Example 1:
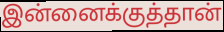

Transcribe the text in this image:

இன்னைக்குத்தான்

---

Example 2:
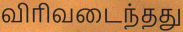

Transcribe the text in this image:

விரிவடைந்தது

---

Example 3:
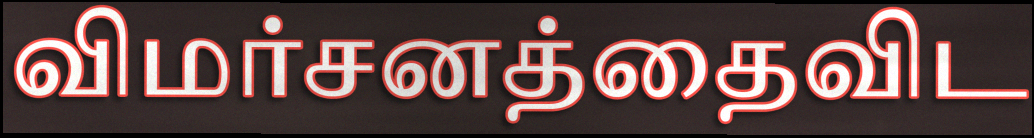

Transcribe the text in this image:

விமர்சனத்தைவிட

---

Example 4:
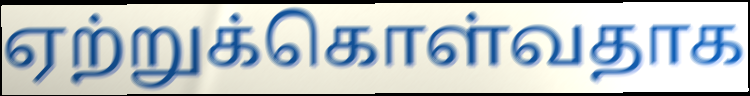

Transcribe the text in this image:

ஏற்றுக்கொள்வதாக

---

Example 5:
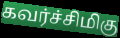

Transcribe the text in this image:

கவர்ச்சிமிகு